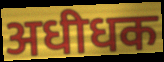
अधीधक